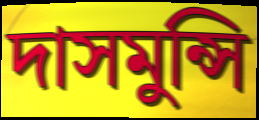
দাসমুন্সি